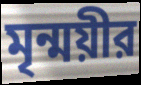
মৃন্ময়ীর